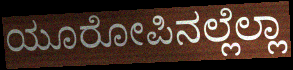
ಯೂರೋಪಿನಲ್ಲೆಲ್ಲಾ